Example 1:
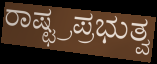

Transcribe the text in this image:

ರಾಷ್ಟ್ರಪ್ರಭುತ್ವ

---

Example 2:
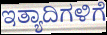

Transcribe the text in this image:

ಇತ್ಯಾದಿಗಳಿಗೆ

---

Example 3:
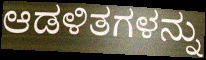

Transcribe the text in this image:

ಆಡಳಿತಗಳನ್ನು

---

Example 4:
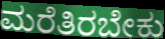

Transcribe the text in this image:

ಮರೆತಿರಬೇಕು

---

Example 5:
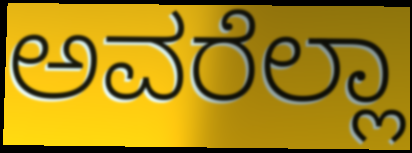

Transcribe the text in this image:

ಅವರೆಲ್ಲಾ